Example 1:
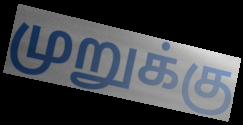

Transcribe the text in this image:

முறுக்கு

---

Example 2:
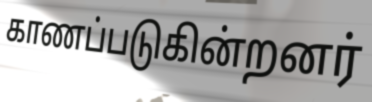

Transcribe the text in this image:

காணப்படுகின்றனர்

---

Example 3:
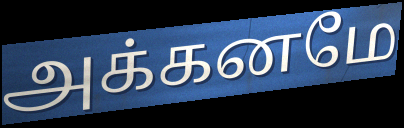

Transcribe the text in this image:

அக்கனமே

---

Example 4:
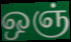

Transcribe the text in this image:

ஒஞ்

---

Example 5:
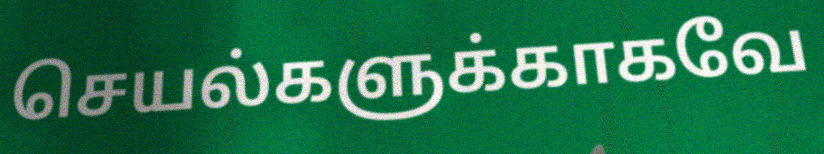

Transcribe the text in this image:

செயல்களுக்காகவே